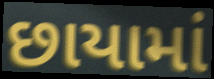
છાયામાં